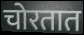
चोरतात